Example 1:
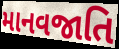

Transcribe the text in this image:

માનવજાતિ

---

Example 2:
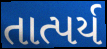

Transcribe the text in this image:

તાત્પર્ય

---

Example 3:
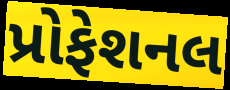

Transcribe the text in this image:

પ્રોફેશનલ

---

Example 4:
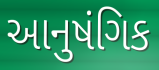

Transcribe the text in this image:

આનુષંગિક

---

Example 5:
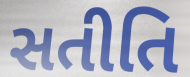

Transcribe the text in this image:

સતીતિ